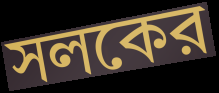
সলকের